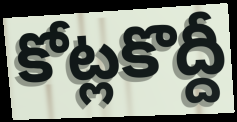
కోట్లకొద్దీ